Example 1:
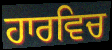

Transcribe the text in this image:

ਹਾਰਵਿਚ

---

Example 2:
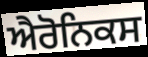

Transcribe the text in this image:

ਐਰੋਨਿਕਸ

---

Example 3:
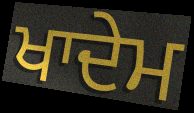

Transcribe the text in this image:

ਖਾਦੇਮ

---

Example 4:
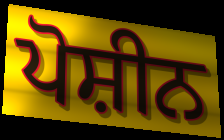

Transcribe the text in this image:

ਪੋਸ਼ੀਨ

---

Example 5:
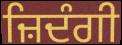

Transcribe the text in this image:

ਜ਼ਿਦੰਗੀ